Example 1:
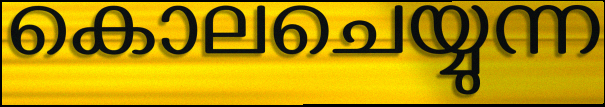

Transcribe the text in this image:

കൊലചെയ്യുന്ന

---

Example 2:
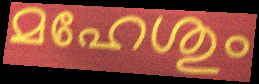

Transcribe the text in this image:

മഹേശും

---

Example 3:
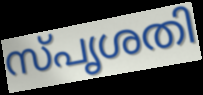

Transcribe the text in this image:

സ്പൃശതി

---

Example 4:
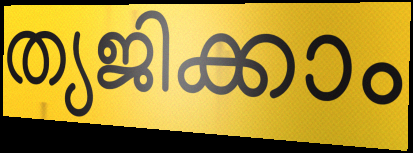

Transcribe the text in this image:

ത്യജിക്കാം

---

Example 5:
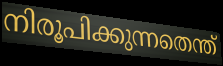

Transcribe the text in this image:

നിരൂപിക്കുന്നതെന്ത്